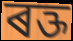
ৰক্ত